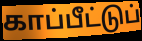
காப்பீட்டுப்